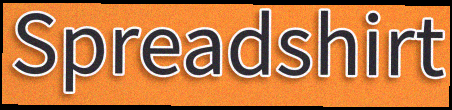
Spreadshirt